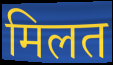
मिलत